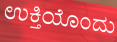
ಉಕ್ತಿಯೊಂದು